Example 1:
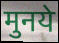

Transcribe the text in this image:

मुनये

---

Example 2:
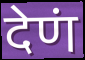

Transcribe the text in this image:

देणं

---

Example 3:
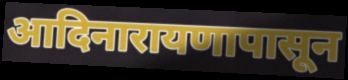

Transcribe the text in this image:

आदिनारायणापासून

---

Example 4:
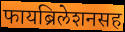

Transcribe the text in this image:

फायब्रिलेशनसह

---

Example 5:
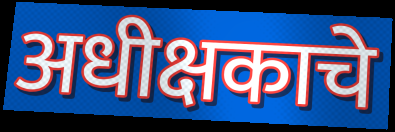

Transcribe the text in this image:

अधीक्षकाचे